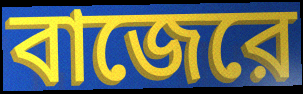
বাজেরে